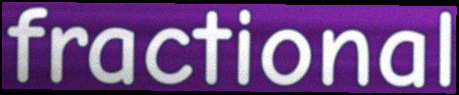
fractional